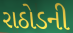
રાઠોડની